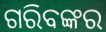
ଗରିବଙ୍କର